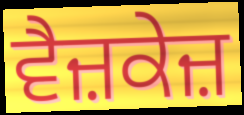
ਵੈਜ਼ਕੇਜ਼